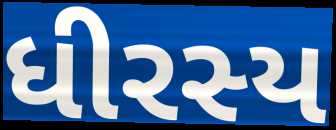
ધીરસ્ય